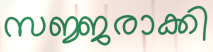
സജ്ജരാക്കി